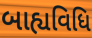
બાહ્યવિધિ